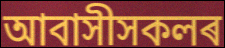
আবাসীসকলৰ